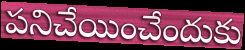
పనిచేయించేందుకు